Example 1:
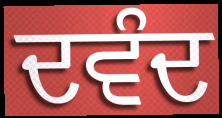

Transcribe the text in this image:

ਦਵੰਦ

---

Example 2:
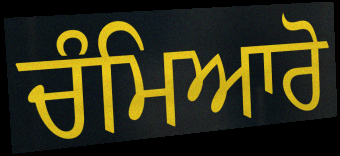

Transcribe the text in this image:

ਚੰਮਿਆਰੋ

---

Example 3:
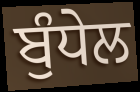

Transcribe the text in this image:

ਬੁੰਧੇਲ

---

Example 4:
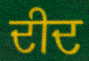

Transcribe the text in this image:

ਦੀਦ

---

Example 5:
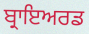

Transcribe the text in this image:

ਬ੍ਰਾਇਅਰਡ